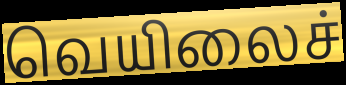
வெயிலைச்